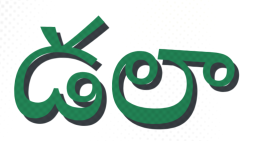
డలా